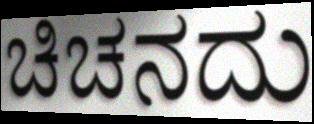
ಚಿಚನದು